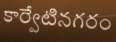
కార్వేటినగరం